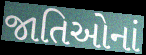
જાતિઓનાં